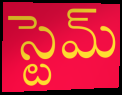
స్టెమ్